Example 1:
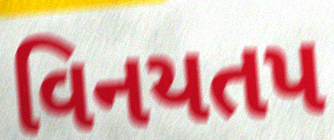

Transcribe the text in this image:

વિનયતપ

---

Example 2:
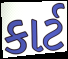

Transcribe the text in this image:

કાર્ટ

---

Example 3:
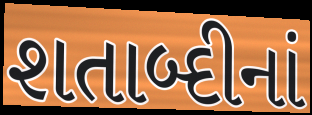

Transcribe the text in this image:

શતાબ્દીનાં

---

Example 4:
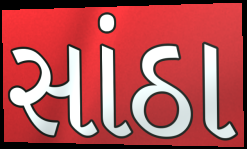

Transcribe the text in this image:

સાંઠા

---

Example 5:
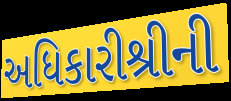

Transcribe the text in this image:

અધિકારીશ્રીની